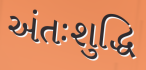
અંતઃશુદ્ધિ